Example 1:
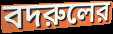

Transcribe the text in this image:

বদরুলের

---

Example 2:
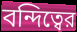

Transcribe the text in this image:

বন্দিত্বের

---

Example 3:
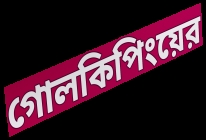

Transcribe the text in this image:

গোলকিপিংয়ের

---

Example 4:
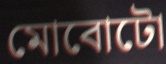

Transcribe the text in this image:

মোবোটো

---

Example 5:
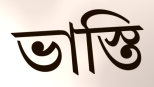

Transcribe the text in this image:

ভাস্তি